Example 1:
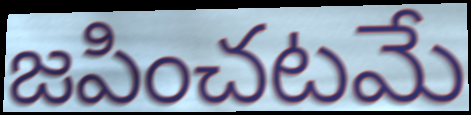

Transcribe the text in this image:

జపించటమే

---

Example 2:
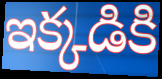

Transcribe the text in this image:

ఇక్కడికి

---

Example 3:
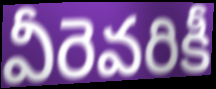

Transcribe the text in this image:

వీరెవరికీ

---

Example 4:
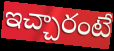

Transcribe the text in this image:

ఇచ్చారంటే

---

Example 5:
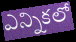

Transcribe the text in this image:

ఎన్నికలో